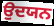
ਉਦਯਨ